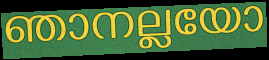
ഞാനല്ലയോ